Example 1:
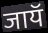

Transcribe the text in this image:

जायॅ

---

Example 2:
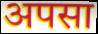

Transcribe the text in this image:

अपसा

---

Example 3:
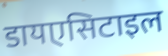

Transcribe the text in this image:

डायएसिटाइल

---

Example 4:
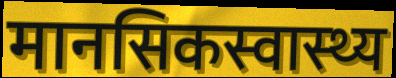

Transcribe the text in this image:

मानसिकस्वास्थ्य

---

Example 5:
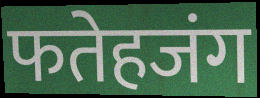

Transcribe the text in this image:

फतेहजंग